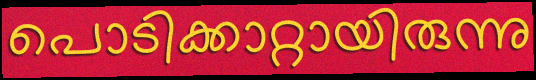
പൊടിക്കാറ്റായിരുന്നു